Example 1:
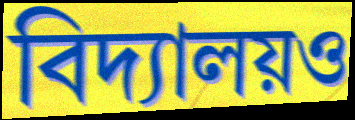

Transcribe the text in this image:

বিদ্যালয়ও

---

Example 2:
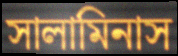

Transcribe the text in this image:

সালামিনাস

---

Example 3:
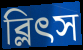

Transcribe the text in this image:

ব্লিৎস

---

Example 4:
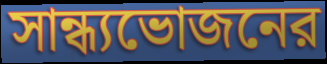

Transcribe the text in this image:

সান্ধ্যভোজনের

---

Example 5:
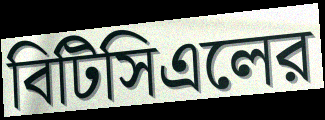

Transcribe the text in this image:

বিটিসিএলের